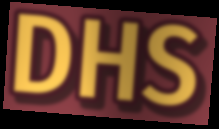
DHS